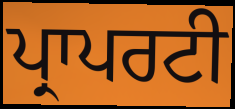
ਪ੍ਰਾਪਰਟੀ